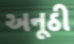
અનૂઠી